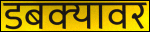
डबक्यावर